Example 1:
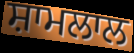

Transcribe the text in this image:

ਸ਼ਾਮਲਾਲ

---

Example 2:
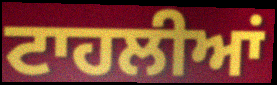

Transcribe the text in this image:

ਟਾਹਲੀਆਂ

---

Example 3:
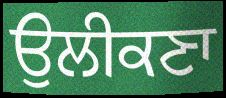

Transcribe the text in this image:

ਉਲੀਕਣਾ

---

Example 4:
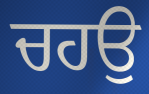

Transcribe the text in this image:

ਚਹਉ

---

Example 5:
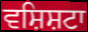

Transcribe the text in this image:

ਵਸ਼ਿਸ਼ਟਾ